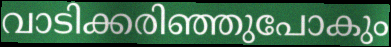
വാടിക്കരിഞ്ഞുപോകും